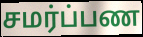
சமர்ப்பண